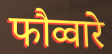
फौव्वारे